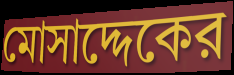
মোসাদ্দেকের